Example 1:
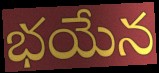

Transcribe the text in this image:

భయేన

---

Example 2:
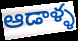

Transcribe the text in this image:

ఆడాళ్ళ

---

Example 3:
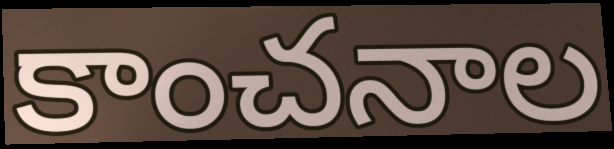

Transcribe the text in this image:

కాంచనాల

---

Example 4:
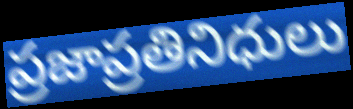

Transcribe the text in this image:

ప్రజాప్రతినిధులు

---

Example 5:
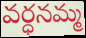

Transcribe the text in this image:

వర్ధనమ్మ